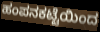
ಹಂಪನಕಟ್ಟೆಯಿಂದ